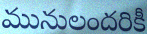
మునులందరికీ